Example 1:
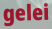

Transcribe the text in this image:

gelei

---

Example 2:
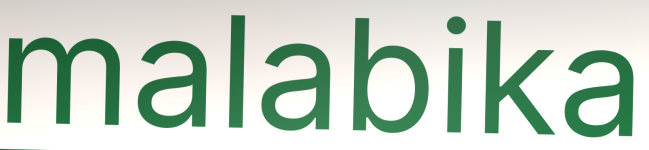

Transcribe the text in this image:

malabika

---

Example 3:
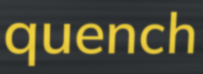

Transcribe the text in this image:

quench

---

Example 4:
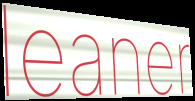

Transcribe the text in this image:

leaner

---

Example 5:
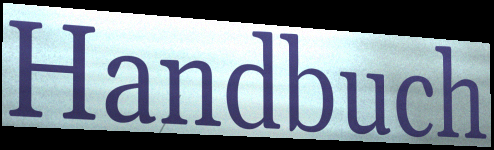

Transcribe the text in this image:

Handbuch